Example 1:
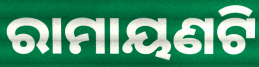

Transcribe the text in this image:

ରାମାୟଣଟି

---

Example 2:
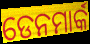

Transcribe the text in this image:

ଡେନମାର୍କ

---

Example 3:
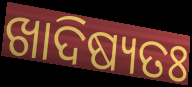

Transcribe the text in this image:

ଖାଦିଷ୍ଯତଃ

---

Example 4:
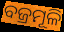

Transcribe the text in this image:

ବଜ୍ରମୂଳି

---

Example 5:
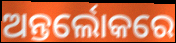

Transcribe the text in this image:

ଅନ୍ତର୍ଲୋକରେ